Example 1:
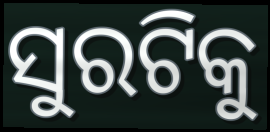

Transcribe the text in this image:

ସୁରଟିକୁ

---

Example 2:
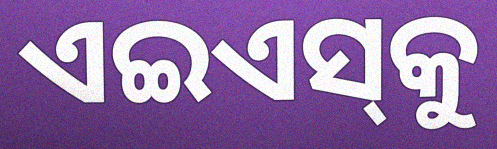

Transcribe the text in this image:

ଏଇଏସ୍‌କୁ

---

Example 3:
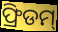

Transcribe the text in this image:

ଫ୍ରିଡମ୍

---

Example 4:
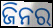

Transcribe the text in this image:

ଜିନର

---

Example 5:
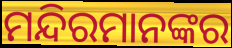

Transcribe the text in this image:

ମନ୍ଦିରମାନଙ୍କର